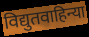
विद्युतवाहिन्या